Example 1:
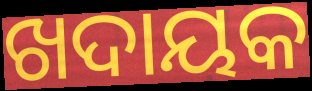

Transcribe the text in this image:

ଖଦାୟକ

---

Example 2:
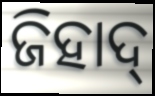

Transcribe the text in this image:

ଜିହାଦ୍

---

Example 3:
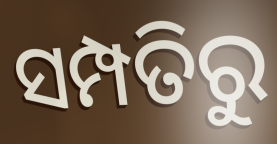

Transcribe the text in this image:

ସମ୍ପତିରୁ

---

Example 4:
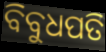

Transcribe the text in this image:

ବିବୁଧପତି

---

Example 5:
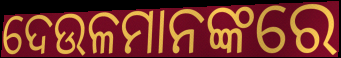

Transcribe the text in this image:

ଦେଉଳମାନଙ୍କରେ